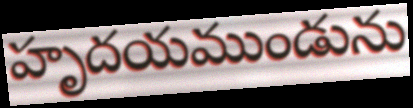
హృదయముండును